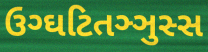
ઉગ્ઘટિતઞ્ઞુસ્સ